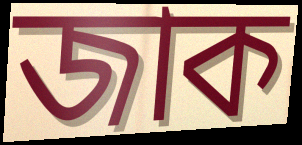
জাক